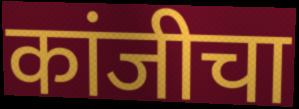
कांजीचा